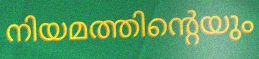
നിയമത്തിന്റെയും